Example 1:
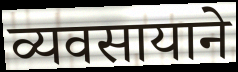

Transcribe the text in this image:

व्यवसायाने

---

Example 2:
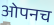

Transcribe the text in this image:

ओपनच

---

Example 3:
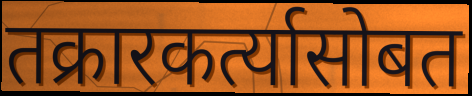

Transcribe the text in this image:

तक्रारकर्त्यासोबत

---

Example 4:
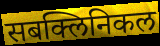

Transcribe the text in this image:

सबक्लिनिकल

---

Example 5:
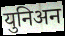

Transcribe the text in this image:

युनिअन